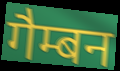
गैम्बन